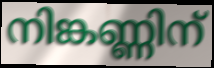
നിങ്കണ്ണിന്